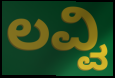
ಲವ್ವಿ